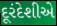
દૂરંદેશીએ